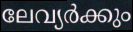
ലേവ്യർക്കും